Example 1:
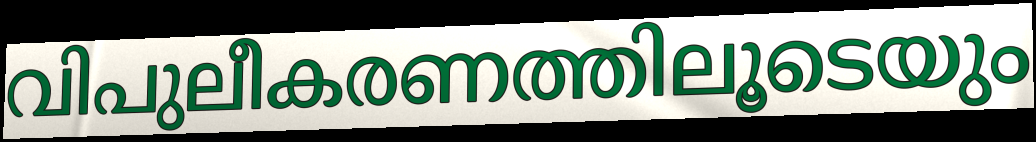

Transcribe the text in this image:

വിപുലീകരണത്തിലൂടെയും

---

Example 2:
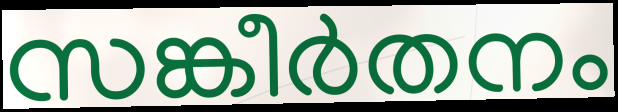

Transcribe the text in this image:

സങ്കീർതനം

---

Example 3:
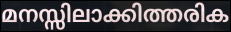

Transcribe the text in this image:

മനസ്സിലാക്കിത്തരിക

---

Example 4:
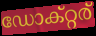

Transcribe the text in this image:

ഡോക്റ്റര്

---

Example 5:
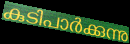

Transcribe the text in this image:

കുടിപാർക്കുന്നു